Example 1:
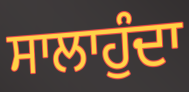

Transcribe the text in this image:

ਸਾਲਾਹੁੰਦਾ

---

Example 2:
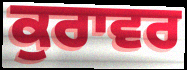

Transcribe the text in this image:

ਕੁਰਾਵਰ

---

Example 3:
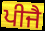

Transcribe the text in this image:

ਪੀਜੈ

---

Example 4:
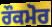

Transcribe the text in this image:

ਰੌਕਮੋਰ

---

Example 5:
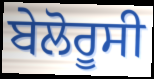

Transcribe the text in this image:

ਬੇਲੋਰੂਸੀ